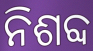
ନିଶବ୍ଦ